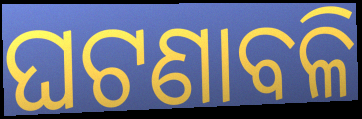
ଘଟଣାବଳି